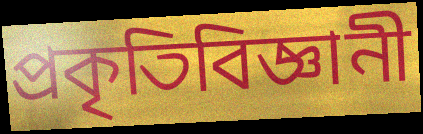
প্রকৃতিবিজ্ঞানী